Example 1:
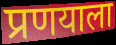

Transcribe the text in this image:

प्रणयाला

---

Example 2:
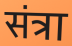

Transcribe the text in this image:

संत्रा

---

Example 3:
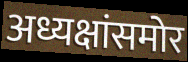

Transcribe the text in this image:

अध्यक्षांसमोर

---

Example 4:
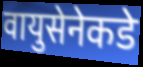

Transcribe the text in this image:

वायुसेनेकडे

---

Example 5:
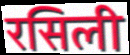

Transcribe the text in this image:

रसिली